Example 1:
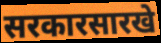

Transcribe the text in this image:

सरकारसारखे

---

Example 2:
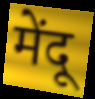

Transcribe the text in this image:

मेंदू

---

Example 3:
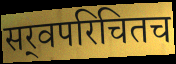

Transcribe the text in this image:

सर्वपरिचितच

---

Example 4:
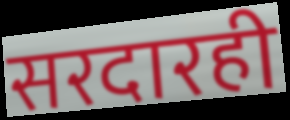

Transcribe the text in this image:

सरदारही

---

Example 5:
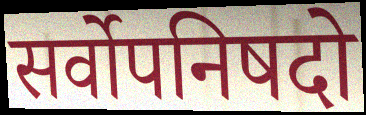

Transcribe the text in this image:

सर्वोपनिषदो